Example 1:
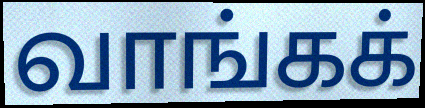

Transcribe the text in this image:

வாங்கக்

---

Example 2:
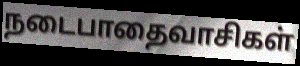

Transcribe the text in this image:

நடைபாதைவாசிகள்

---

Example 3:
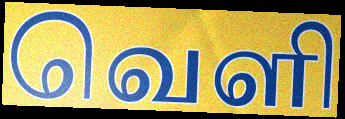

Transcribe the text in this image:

வெளி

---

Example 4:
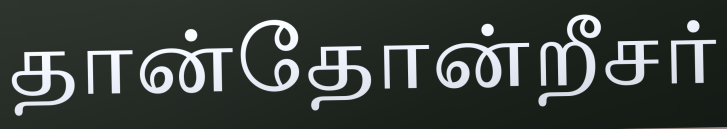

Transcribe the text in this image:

தான்தோன்றீசர்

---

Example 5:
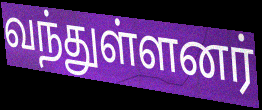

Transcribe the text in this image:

வந்துள்ளனர்